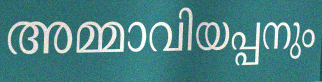
അമ്മാവിയപ്പനും